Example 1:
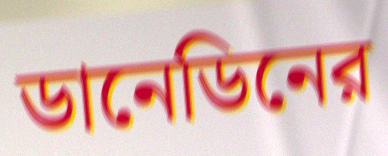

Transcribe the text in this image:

ডানেডিনের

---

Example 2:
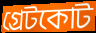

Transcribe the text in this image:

গ্রেটকোট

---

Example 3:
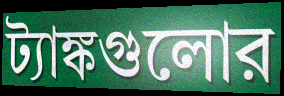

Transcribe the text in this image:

ট্যাঙ্কগুলোর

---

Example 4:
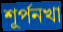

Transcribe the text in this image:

শূর্পনখা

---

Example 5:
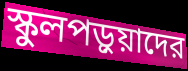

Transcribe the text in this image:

স্কুলপড়ুয়াদের